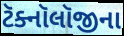
ટૅક્નૉલૉજીના